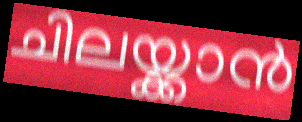
ചിലയ്ക്കാൻ